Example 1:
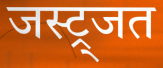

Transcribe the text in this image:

जस्ट्र्जत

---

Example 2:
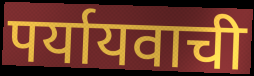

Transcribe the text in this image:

पर्यायवाची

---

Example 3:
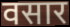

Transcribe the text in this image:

वसार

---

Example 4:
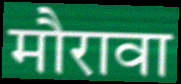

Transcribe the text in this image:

मौरावा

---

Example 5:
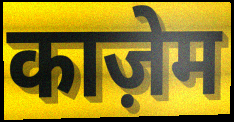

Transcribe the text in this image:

काज़ेम